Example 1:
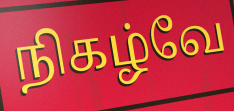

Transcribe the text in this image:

நிகழ்வே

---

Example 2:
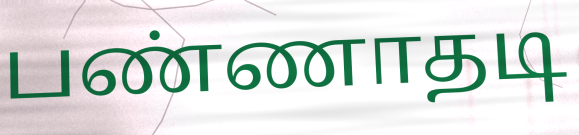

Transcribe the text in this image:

பண்ணாதடி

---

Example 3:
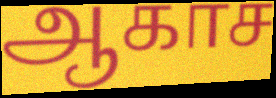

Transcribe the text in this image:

ஆகாச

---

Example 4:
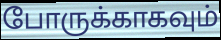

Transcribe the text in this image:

போருக்காகவும்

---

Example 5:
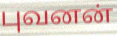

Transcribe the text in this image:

புவனன்